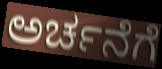
ಅರ್ಚನೆಗೆ